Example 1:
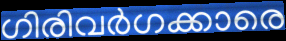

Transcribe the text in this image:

ഗിരിവർഗക്കാരെ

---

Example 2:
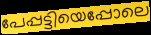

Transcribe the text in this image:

പേപ്പട്ടിയെപ്പോലെ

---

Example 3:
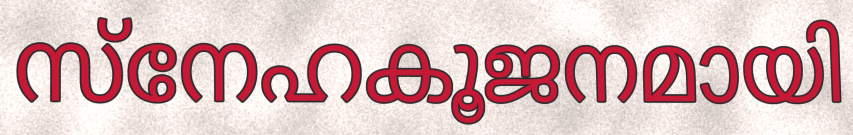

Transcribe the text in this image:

സ്നേഹകൂജനമായി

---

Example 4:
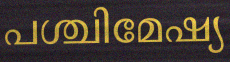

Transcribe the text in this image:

പശ്ചിമേഷ്യ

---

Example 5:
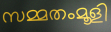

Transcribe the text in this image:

സമ്മതംമൂളി